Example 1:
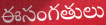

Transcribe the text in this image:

ఈసంగతులు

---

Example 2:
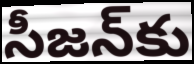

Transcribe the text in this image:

సీజన్‌కు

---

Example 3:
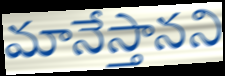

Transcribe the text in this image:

మానేస్తానని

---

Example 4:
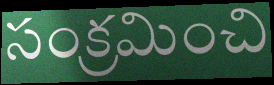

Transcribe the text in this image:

సంక్రమించి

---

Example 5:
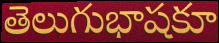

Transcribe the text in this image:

తెలుగుభాషకూ